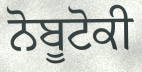
ਨੋਬੂਟੋਕੀ